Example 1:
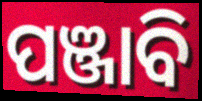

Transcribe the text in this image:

ପଞ୍ଜାବି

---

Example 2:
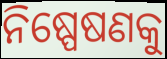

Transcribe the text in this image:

ନିଷ୍ପେଷଣକୁ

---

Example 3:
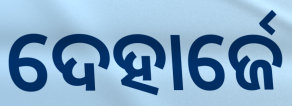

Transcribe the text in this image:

ଦେହାର୍ଜେ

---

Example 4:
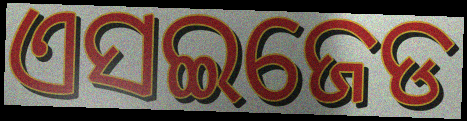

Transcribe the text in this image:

ଏସଇଜେଡ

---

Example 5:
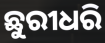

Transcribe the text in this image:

ଛୁରୀଧରି